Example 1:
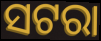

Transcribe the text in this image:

ସଟରା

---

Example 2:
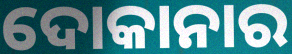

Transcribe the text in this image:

ଦୋକାନାର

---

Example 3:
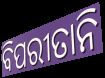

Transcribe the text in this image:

ବିପରୀତାନି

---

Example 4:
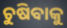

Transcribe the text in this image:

ଚୁଷିବାକୁ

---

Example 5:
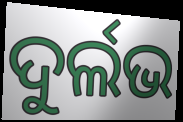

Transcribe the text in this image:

ଦୁର୍ଲଭ